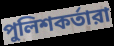
পুলিশকর্তারা